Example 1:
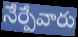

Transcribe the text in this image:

నేర్పేవారు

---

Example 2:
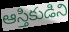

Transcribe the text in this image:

ఆస్తికుడిని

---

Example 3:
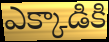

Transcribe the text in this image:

ఎక్కాడికి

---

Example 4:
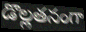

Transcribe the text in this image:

డొల్లతనంగా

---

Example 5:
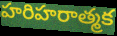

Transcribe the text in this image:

హరిహరాత్మక